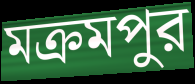
মক্রমপুর